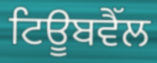
ਟਿਊਬਵੈੱਲ